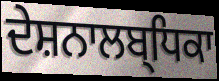
ਦੇਸ਼ਨਾਲਬ੍ਧਿਕਾ